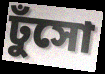
ঢুঁসো